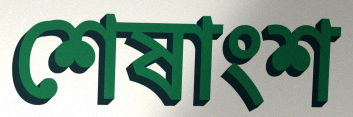
শেষাংশ